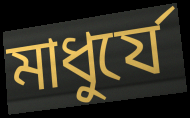
মাধুর্যে